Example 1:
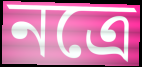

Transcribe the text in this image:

নত্রে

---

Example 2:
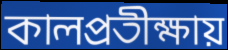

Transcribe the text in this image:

কালপ্রতীক্ষায়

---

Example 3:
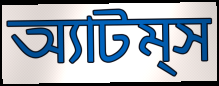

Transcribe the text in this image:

অ্যাটম্‌স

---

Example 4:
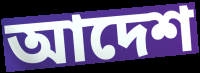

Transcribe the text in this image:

আদেশ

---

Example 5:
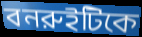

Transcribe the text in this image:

বনরুইটিকে